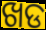
ଖଡ